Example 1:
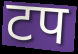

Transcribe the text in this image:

टप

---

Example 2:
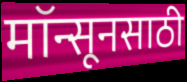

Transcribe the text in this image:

मॉन्सूनसाठी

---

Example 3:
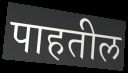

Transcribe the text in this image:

पाहतील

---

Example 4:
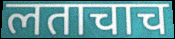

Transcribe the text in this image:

लताचाच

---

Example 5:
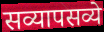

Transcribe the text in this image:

सव्यापसव्ये